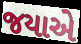
જયાએ